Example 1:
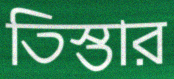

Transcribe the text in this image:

তিস্তার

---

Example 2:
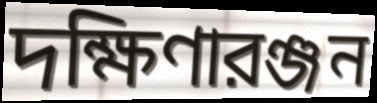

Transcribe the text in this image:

দক্ষিণারঞ্জন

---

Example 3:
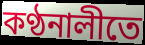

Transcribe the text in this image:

কণ্ঠনালীতে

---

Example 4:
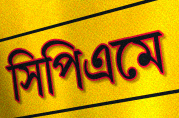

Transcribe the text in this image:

সিপিএমে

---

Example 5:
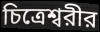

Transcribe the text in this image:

চিত্রেশ্বরীর